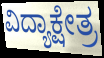
ವಿದ್ಯಾಕ್ಷೇತ್ರ